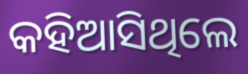
କହିଆସିଥିଲେ